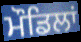
ਮੌਡਿਲਾਂ